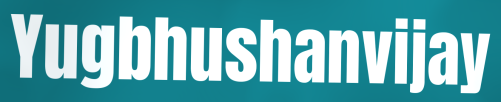
Yugbhushanvijay